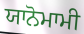
ਯਾਨੋਮਾਮੀ